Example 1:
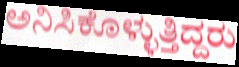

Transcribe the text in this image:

ಅನಿಸಿಕೊಳ್ಳುತ್ತಿದ್ದರು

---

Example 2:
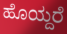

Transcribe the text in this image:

ಹೊಯ್ದರೆ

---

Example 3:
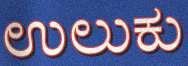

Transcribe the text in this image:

ಉಲುಕು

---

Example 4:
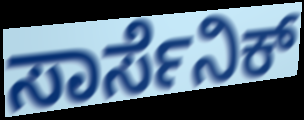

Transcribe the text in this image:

ಸಾರ್ಸೆನಿಕ್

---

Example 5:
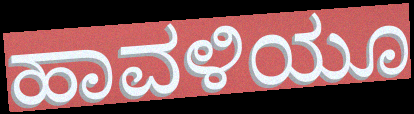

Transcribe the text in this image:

ಹಾವಳಿಯೂ